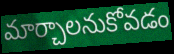
మార్చాలనుకోవడం